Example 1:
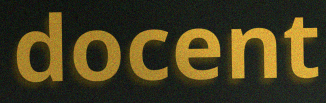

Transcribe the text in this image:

docent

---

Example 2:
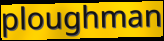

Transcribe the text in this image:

ploughman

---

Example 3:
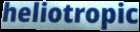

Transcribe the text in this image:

heliotropic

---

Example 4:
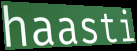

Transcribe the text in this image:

haasti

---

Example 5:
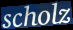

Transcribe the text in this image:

scholz